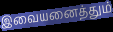
இவையனைத்தும்